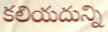
కలియదున్ని